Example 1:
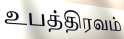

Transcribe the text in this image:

உபத்திரவம்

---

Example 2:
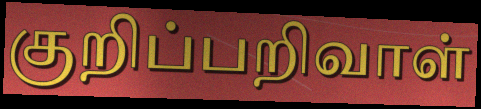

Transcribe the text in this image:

குறிப்பறிவாள்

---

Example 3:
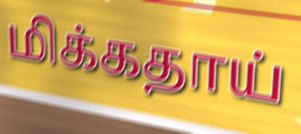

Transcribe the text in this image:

மிக்கதாய்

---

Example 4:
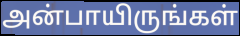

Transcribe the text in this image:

அன்பாயிருங்கள்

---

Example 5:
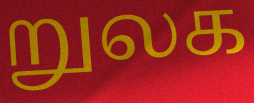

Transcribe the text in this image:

றுலக